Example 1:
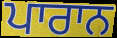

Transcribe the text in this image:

ਪਾਰਾਨ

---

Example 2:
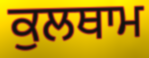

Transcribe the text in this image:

ਕੁਲਥਾਮ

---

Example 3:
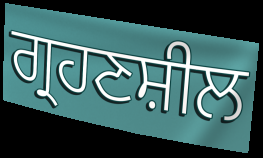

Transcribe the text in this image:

ਗ੍ਰਹਣਸ਼ੀਲ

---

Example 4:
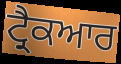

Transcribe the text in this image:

ਟ੍ਰੈਕਆਰ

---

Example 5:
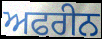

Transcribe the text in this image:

ਅਫਰੀਨ